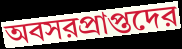
অবসরপ্রাপ্তদের